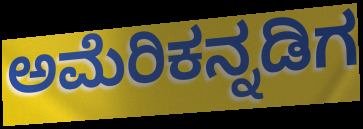
ಅಮೆರಿಕನ್ನಡಿಗ